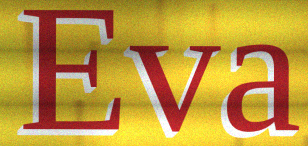
Eva